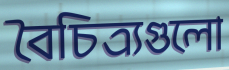
বৈচিত্র্যগুলো